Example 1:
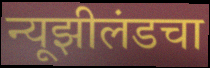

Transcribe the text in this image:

न्यूझीलंडचा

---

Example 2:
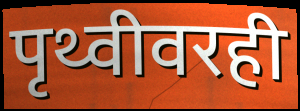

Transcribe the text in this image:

पृथ्वीवरही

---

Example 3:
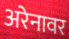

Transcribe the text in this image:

अरेनावर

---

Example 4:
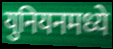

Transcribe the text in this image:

युनियनमध्ये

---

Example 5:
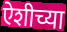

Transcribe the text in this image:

ऐशीच्या